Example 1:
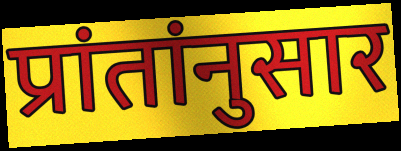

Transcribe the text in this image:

प्रांतांनुसार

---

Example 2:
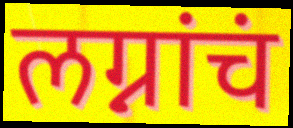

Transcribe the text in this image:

लग्नांचं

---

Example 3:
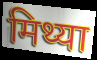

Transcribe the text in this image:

मिथ्या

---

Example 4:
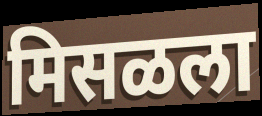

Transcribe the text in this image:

मिसळला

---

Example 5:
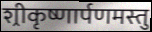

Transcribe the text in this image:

श्रीकृष्णार्पणमस्तु